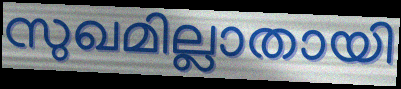
സുഖമില്ലാതായി